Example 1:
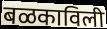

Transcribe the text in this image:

बळकाविली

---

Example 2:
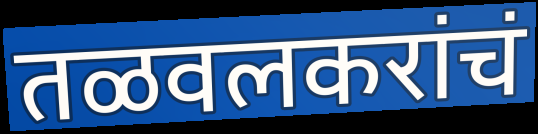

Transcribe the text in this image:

तळवलकरांचं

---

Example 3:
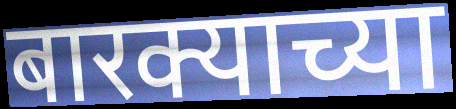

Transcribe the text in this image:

बारक्याच्या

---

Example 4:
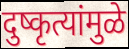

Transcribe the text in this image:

दुष्कृत्यांमुळे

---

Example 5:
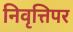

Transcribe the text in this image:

निवृत्तिपर